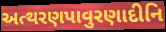
અત્થરણપાવુરણાદીનિ